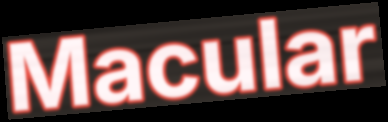
Macular